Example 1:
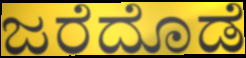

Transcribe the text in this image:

ಜರೆದೊಡೆ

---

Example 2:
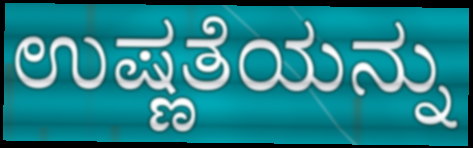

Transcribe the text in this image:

ಉಷ್ಣತೆಯನ್ನು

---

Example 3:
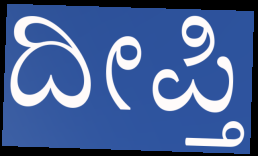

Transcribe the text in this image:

ದೀಪ್ತಿ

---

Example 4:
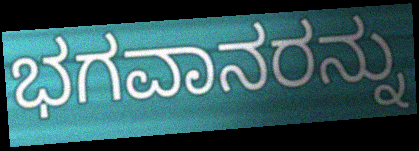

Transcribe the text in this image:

ಭಗವಾನರನ್ನು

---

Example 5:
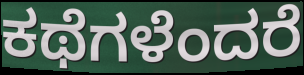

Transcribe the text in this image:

ಕಥೆಗಳೆಂದರೆ